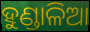
ହୁଣ୍ଡାଳିଆ